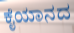
ಕೈಯಾನದ